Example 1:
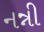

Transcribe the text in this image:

નન્ની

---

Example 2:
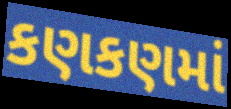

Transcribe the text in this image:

કણકણમાં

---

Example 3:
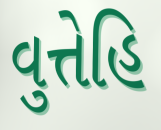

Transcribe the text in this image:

વુત્તેહિ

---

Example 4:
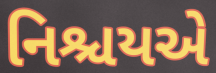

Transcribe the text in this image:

નિશ્ચયએ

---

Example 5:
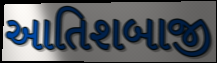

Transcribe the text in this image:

આતિશબાજી